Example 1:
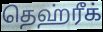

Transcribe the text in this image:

தெஹ்ரீக்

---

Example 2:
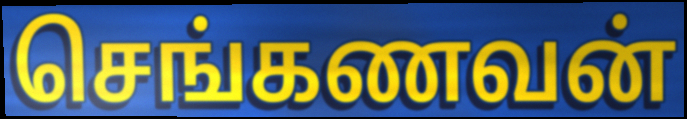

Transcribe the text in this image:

செங்கணவன்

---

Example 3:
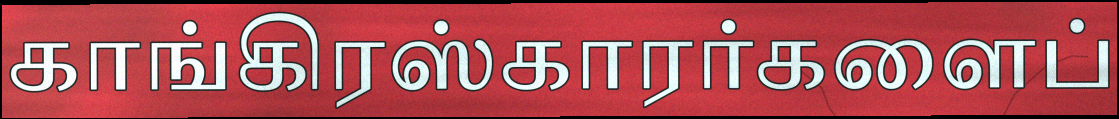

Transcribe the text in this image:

காங்கிரஸ்காரர்களைப்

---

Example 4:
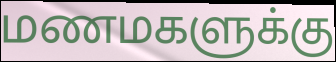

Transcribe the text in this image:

மணமகளுக்கு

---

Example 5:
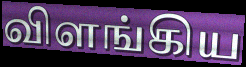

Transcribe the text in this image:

விளங்கிய